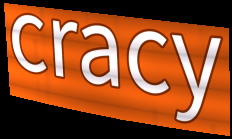
cracy